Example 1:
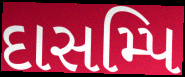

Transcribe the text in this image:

દાસમ્પિ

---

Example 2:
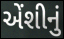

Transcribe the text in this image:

એંશીનું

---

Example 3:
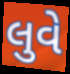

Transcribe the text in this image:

લુવે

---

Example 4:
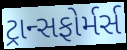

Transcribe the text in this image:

ટ્રાન્સફોર્મર્સ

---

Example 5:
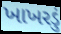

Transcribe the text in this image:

ખાખરડું